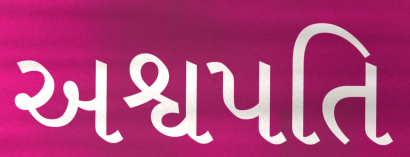
અશ્વપતિ